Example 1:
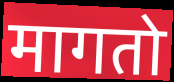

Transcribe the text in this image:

मागतो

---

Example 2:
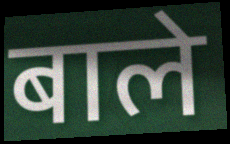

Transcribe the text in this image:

बाले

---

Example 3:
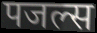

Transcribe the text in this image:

पजल्स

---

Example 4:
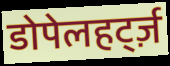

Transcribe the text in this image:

डोपेलहर्ट्ज़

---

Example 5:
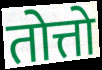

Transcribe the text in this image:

तोत्तो